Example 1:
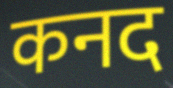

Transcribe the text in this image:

कनद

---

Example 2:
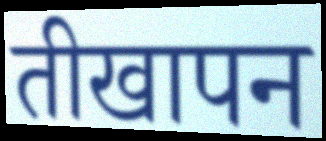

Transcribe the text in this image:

तीखापन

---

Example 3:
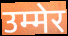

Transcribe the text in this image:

उम्मेर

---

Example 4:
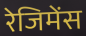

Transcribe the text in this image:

रेजिमेंस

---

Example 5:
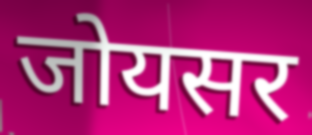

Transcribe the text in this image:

जोयसर